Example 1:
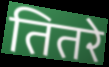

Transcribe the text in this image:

तितरे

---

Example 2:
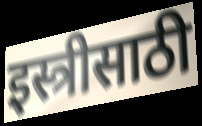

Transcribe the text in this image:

इस्त्रीसाठी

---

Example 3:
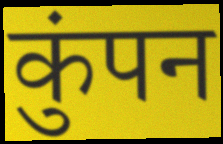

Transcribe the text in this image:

कुंपन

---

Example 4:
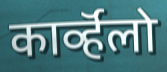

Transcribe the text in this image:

कार्व्हॅलो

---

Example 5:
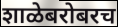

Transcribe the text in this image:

शाळेबरोबरच